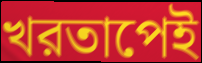
খরতাপেই